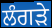
ਲੰਗੜੇ